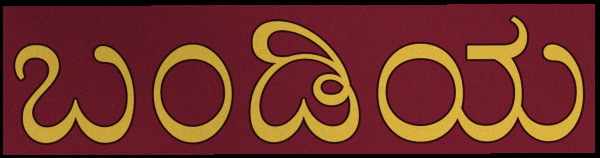
ಬಂಡಿಯ